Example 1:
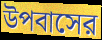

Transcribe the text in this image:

উপবাসের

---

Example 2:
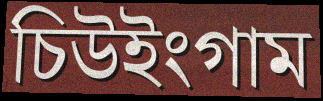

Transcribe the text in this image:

চিউইংগাম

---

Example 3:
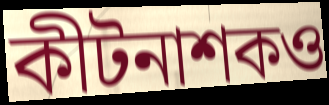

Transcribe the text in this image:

কীটনাশকও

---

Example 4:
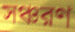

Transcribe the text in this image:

সঞ্চরণ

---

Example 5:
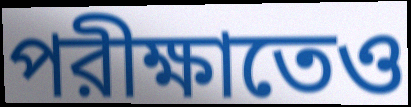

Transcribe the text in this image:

পরীক্ষাতেও